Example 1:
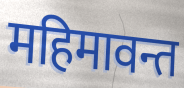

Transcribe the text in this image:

महिमावन्त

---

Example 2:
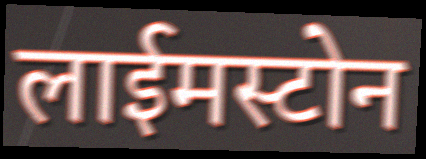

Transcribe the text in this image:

लाईमस्टोन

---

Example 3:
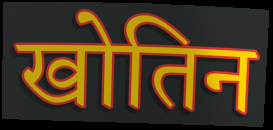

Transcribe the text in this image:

खोतिन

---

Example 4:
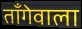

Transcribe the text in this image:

ताँगेवाला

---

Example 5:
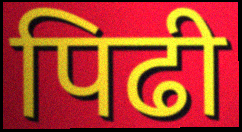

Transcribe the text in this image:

पिढी